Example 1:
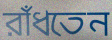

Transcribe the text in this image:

রাঁধতেন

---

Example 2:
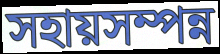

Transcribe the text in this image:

সহায়সম্পন্ন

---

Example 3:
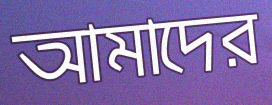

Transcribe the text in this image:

আমাদের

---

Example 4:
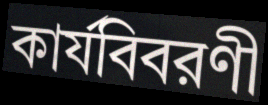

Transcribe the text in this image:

কার্যবিবরণী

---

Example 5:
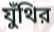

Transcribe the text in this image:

যুঁথির